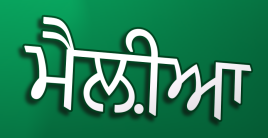
ਮੈਲ਼ੀਆ